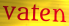
vaten